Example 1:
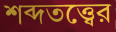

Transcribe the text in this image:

শব্দতত্ত্বের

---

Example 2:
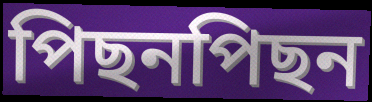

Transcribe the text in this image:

পিছনপিছন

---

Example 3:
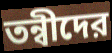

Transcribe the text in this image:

তন্বীদের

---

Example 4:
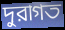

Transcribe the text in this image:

দুরাগত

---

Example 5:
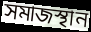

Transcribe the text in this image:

সমাজস্থান